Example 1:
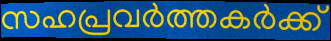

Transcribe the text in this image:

സഹപ്രവർത്തകർക്ക്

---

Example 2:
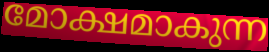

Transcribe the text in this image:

മോക്ഷമാകുന്ന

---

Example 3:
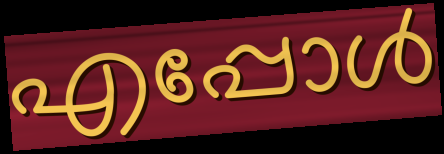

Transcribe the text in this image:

എപ്പോൾ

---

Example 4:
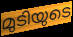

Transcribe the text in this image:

മുടിയുടെ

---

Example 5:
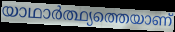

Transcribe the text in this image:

യാഥാർത്ഥ്യത്തെയാണ്